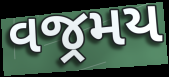
વજ્રમય